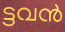
ട്ടവൻ